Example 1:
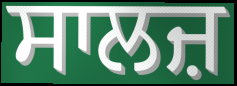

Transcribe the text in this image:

ਸਾਲਜ਼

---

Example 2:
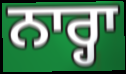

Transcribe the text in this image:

ਨਾਰ੍ਹਾ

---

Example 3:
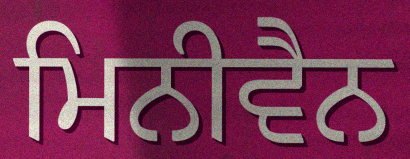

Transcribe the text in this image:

ਮਿਨੀਵੈਨ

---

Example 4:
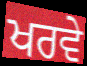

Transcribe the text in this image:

ਖਰਵੇ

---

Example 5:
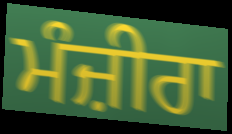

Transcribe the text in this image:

ਮੰਜ਼ੀਰਾ